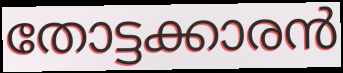
തോട്ടക്കാരൻ